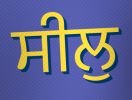
ਸੀਲੁ